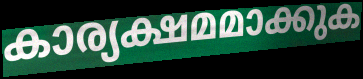
കാര്യക്ഷമമാക്കുക